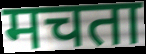
मचता